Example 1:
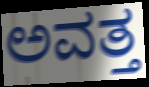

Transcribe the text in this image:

ಅವತ್ತ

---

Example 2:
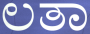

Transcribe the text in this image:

ಲತಾ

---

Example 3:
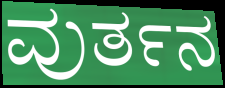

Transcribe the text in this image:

ವುರ್ತನ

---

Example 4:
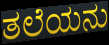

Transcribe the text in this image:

ತಲೆಯನು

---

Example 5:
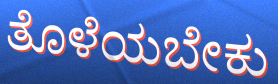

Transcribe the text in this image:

ತೊಳೆಯಬೇಕು